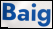
Baig